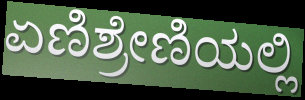
ಏಣಿಶ್ರೇಣಿಯಲ್ಲಿ